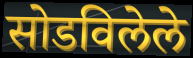
सोडविलेले